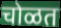
चोळत